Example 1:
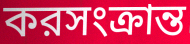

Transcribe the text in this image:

করসংক্রান্ত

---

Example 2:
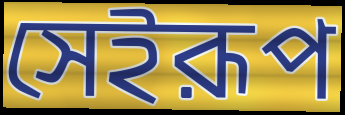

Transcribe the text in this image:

সেইরূপ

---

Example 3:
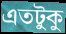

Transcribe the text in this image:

এতটুকু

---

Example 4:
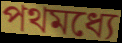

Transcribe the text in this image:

পথমধ্যে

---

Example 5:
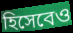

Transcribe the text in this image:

হিসেবেও